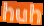
huh